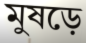
মুষড়ে